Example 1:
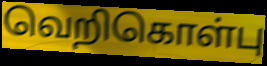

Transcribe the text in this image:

வெறிகொள்பு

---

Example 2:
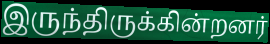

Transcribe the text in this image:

இருந்திருக்கின்றனர்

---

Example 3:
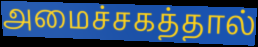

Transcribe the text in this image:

அமைச்சகத்தால்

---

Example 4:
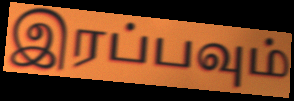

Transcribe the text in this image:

இரப்பவும்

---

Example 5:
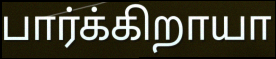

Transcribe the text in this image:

பார்க்கிறாயா